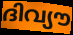
ദിവ്യൗ